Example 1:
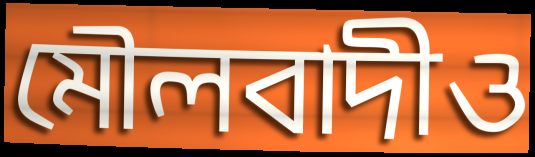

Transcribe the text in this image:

মৌলবাদীও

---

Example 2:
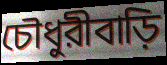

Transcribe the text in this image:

চৌধুরীবাড়ি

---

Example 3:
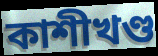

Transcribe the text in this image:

কাশীখণ্ড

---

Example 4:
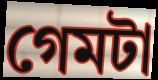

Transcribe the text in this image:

গেমটা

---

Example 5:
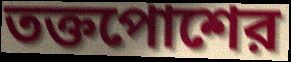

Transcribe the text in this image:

তক্তপোশের